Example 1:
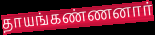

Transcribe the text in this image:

தாயங்கண்ணனார்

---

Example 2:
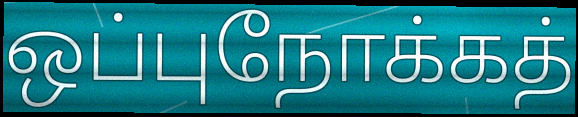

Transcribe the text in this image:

ஒப்புநோக்கத்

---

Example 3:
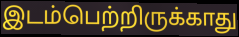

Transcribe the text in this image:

இடம்பெற்றிருக்காது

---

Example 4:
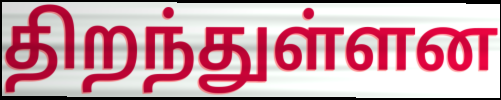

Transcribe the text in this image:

திறந்துள்ளன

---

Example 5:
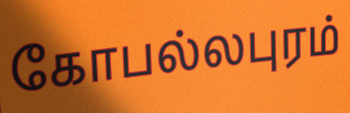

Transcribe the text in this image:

கோபல்லபுரம்